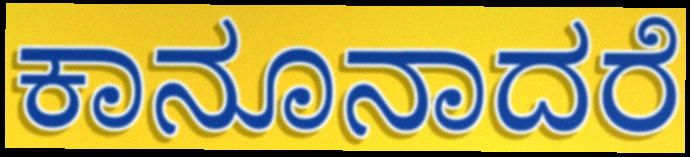
ಕಾನೂನಾದರೆ